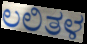
ಲಲಿತಳ